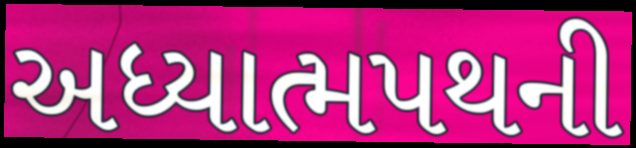
અધ્યાત્મપથની